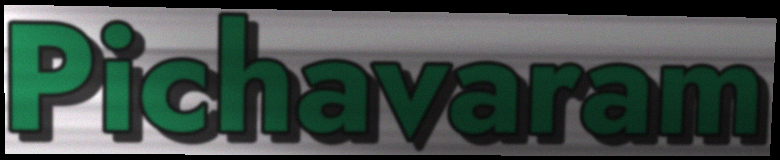
Pichavaram